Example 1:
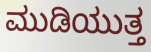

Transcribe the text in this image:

ಮುಡಿಯುತ್ತ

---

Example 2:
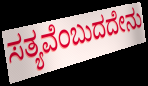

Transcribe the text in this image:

ಸತ್ಯವೆಂಬುದದೇನು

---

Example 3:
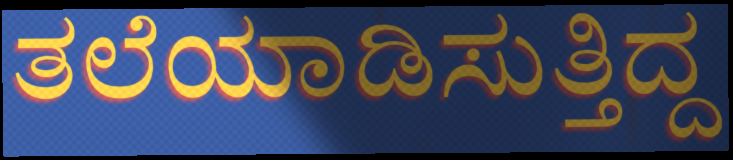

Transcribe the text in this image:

ತಲೆಯಾಡಿಸುತ್ತಿದ್ದ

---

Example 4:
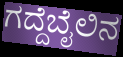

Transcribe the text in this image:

ಗದ್ದೆಬೈಲಿನ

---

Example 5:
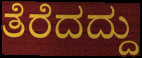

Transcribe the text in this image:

ತೆರೆದದ್ದು